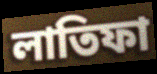
লাতিফা